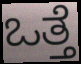
ಒತ್ತೆ